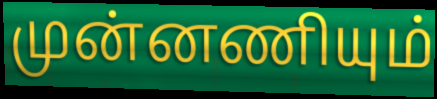
முன்னணியும்